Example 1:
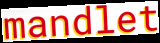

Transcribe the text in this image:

mandlet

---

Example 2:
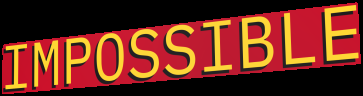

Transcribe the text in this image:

IMPOSSIBLE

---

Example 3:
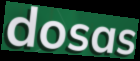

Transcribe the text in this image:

dosas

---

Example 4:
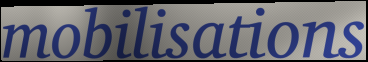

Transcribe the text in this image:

mobilisations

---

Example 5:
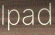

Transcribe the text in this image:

Ipad